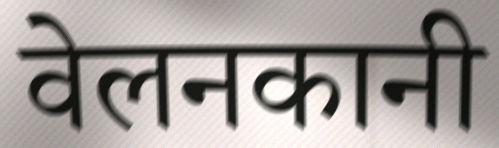
वेलनकानी